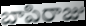
బాపిరాజు